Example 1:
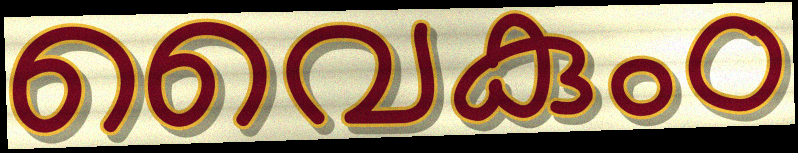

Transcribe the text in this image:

വൈകുംഠ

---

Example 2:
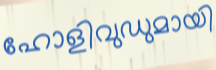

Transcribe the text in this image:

ഹോളിവുഡുമായി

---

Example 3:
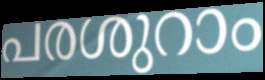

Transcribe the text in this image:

പരശുറാം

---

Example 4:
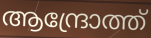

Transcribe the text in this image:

ആന്ദ്രോത്ത്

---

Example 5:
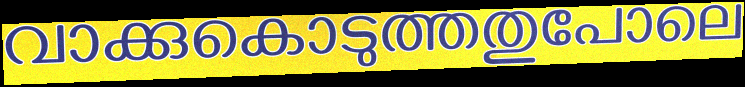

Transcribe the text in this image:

വാക്കുകൊടുത്തതുപോലെ